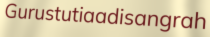
Gurustutiaadisangrah